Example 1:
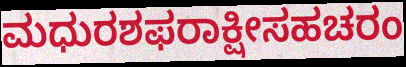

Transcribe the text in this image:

ಮಧುರಶಫರಾಕ್ಷೀಸಹಚರಂ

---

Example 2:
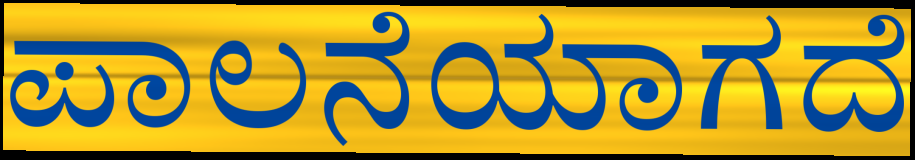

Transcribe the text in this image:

ಪಾಲನೆಯಾಗದೆ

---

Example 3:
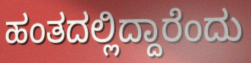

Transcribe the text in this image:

ಹಂತದಲ್ಲಿದ್ದಾರೆಂದು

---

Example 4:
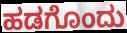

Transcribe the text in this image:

ಹಡಗೊಂದು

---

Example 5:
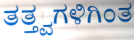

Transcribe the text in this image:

ತತ್ತ್ವಗಳಿಗಿಂತ